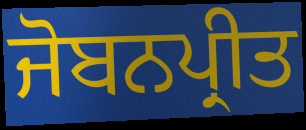
ਜੋਬਨਪ੍ਰੀਤ